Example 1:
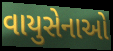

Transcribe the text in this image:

વાયુસેનાઓ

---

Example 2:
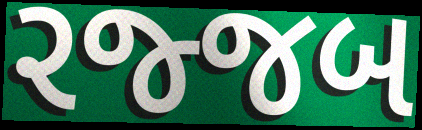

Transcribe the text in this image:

રજ્જબ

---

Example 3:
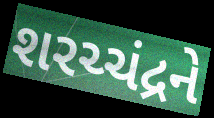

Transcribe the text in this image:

શરચ્ચંદ્રને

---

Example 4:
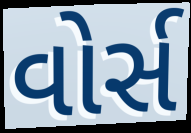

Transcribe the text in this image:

વોર્સ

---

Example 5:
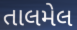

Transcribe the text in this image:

તાલમેલ